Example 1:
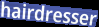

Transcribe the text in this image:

hairdresser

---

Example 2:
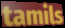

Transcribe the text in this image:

tamils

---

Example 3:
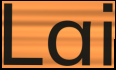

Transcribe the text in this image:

Lai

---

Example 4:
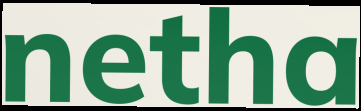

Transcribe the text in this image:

netha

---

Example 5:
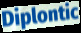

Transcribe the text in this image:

Diplontic